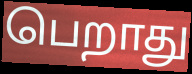
பெறாது